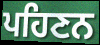
ਪਹਿਣਨ